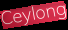
Ceylong